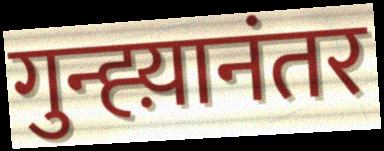
गुन्ह्य़ानंतर